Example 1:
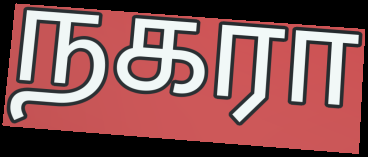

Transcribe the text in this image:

நகரா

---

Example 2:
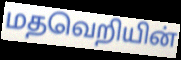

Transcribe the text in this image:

மதவெறியின்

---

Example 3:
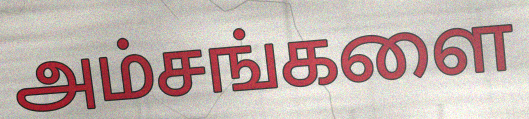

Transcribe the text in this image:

அம்சங்களை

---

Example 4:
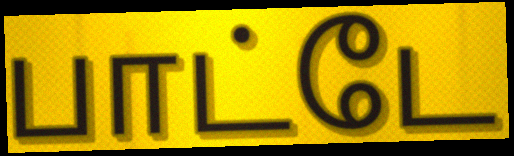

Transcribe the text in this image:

பாட்டே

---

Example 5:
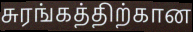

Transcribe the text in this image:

சுரங்கத்திற்கான